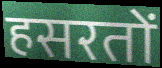
हसरतों